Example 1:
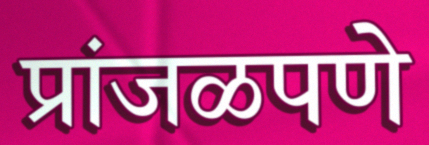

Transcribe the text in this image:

प्रांजळपणे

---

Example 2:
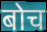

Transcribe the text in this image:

बोच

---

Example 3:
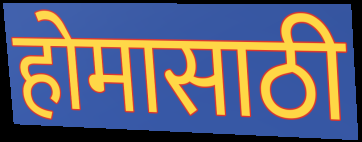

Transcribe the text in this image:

होमासाठी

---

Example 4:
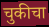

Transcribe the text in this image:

चुकीचा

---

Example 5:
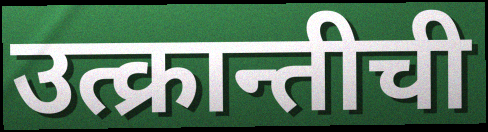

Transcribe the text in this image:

उत्क्रान्तीची